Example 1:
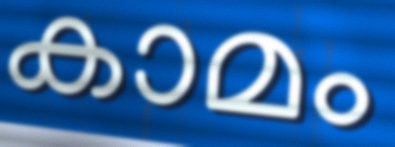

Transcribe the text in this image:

കാമം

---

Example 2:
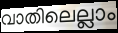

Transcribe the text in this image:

വാതിലെല്ലാം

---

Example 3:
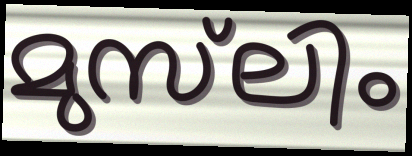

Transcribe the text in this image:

മുസ്‌ലിം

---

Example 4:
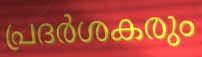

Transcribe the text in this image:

പ്രദർശകരും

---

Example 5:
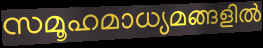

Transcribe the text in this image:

സമൂഹമാധ്യമങ്ങളിൽ